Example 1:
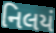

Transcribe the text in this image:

નિલયં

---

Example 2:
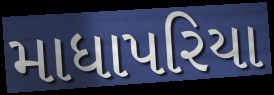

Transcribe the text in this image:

માધાપરિયા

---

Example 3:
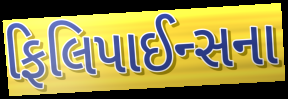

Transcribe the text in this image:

ફિલિપાઈન્સના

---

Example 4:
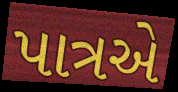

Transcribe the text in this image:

પાત્રએ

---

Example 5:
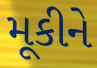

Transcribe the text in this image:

મૂકીને